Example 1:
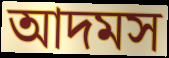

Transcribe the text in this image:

আদমস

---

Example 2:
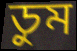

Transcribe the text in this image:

ডুম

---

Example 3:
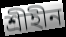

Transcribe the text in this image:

শ্রীহীন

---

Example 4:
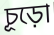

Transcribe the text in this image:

চূড়ো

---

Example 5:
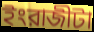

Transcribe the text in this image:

ইংরাজীটা